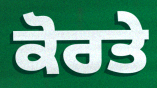
ਕੋਰਤੇ